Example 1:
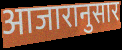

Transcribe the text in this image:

आजारानुसार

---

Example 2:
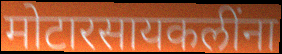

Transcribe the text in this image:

मोटारसायकलींना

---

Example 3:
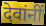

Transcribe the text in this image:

देवांनीं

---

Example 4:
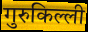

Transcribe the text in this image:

गुरुकिल्ली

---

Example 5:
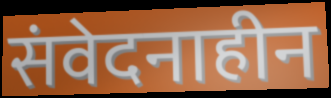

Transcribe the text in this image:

संवेदनाहीन